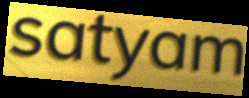
satyam